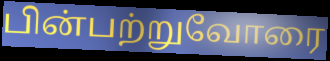
பின்பற்றுவோரை